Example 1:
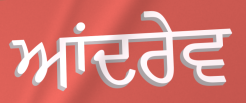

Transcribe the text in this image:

ਆਂਦਰੇਵ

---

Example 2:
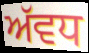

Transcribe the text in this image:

ਅੱਵਧ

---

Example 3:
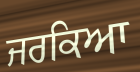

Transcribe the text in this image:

ਜਰਕਿਆ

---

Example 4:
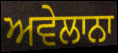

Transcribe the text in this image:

ਅਵੇਲਾਨਾ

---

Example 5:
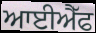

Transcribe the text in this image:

ਆਈਐੱਫ